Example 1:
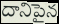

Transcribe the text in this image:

దానిపైన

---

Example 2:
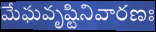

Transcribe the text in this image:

మేఘవృష్టినివారణః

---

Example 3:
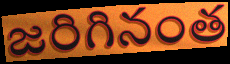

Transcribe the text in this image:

జరిగినంత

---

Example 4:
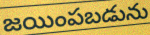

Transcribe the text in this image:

జయింపబడును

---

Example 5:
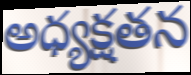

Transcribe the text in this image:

అధ్యక్షతన